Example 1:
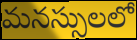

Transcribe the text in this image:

మనస్సులలో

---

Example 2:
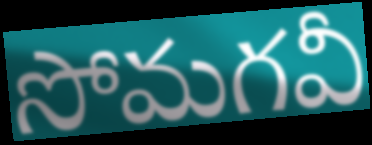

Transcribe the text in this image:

సోమగవీ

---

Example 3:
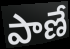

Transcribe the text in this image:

పాణే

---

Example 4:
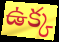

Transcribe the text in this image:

ఉక్క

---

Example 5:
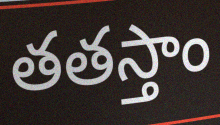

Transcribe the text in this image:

తతస్తాం